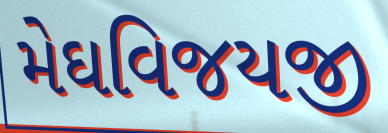
મેઘવિજયજી